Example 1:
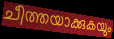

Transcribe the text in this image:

ചീത്തയാക്കുകയും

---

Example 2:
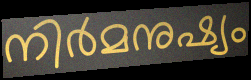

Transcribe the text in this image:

നിർമനുഷ്യം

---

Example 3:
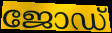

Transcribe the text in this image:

ജോഡ്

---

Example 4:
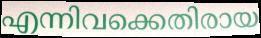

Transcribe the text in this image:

എന്നിവക്കെതിരായ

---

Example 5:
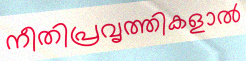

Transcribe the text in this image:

നീതിപ്രവൃത്തികളാൽ